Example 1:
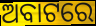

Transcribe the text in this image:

ଅବାଟରେ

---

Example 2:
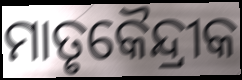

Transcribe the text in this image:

ମାତୃକୈନ୍ଦ୍ରୀକ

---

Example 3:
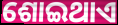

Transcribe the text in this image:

ଶୋଇଥାଏ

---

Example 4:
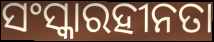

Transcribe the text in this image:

ସଂସ୍କାରହୀନତା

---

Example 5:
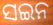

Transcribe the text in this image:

ସଇନ